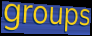
groups